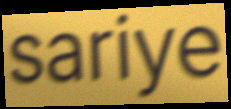
sariye